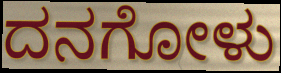
ದನಗೋಳು